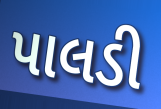
પાલડી